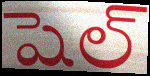
షెల్